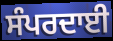
ਸੰਪਰਦਾਈ